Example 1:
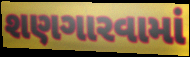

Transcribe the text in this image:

શણગારવામાં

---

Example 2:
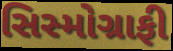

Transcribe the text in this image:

સિસ્મોગ્રાફી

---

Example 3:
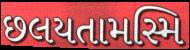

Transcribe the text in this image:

છલયતામસ્મિ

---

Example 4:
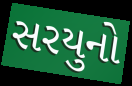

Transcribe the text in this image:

સરયુનો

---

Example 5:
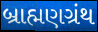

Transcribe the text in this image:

બ્રાહ્મણગ્રંથ